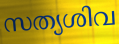
സത്യശിവ